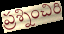
ప్రశ్నించిరి